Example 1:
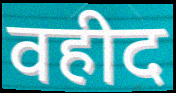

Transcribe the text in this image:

वहीद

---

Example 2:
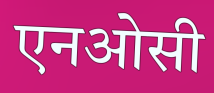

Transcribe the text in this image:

एनओसी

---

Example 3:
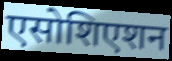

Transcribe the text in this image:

एसोशिएशन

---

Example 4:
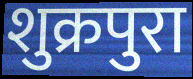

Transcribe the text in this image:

शुक्रपुरा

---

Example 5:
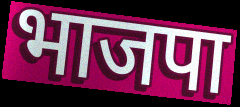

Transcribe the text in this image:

भाजपा